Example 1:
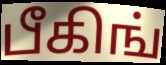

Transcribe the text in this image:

பீகிங்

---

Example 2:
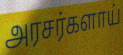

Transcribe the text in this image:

அரசர்களாய்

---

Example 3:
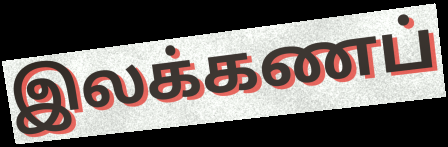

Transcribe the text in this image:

இலக்கணப்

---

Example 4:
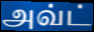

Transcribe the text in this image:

அவ்ட்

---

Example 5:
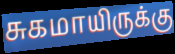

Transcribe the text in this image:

சுகமாயிருக்கு